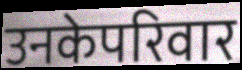
उनकेपरिवार